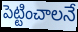
పెట్టించాలనే